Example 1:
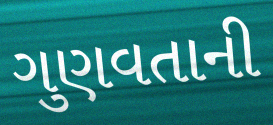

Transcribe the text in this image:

ગુણવતાની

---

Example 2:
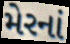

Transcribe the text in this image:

મેરનાં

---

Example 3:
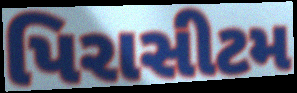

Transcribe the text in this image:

પિરાસીટમ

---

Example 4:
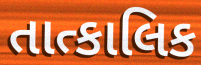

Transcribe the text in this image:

તાત્કાલિક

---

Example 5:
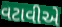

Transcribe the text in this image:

વટાવીએ